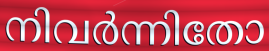
നിവർന്നിതോ